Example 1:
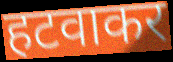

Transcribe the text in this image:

हटवाकर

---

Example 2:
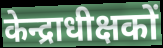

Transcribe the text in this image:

केन्द्राधीक्षकों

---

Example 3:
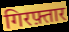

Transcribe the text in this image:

गिरफ़्तार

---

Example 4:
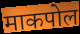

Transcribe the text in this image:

माकपोल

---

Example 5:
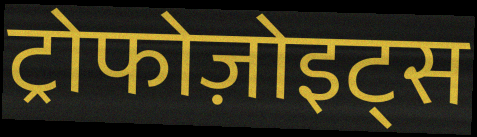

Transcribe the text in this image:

ट्रोफोज़ोइट्स